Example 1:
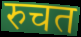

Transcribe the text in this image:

रुचत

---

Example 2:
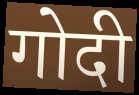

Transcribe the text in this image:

गोदी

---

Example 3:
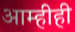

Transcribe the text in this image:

आम्हीही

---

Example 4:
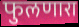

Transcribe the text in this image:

फुलणारा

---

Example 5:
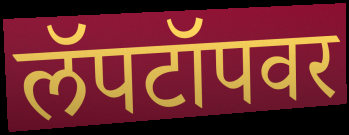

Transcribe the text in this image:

लॅपटॉपवर